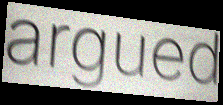
argued